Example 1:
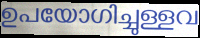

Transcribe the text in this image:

ഉപയോഗിച്ചുള്ളവ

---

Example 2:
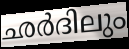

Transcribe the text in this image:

ഛർദിലും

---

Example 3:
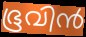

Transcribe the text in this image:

ഭൂവിൻ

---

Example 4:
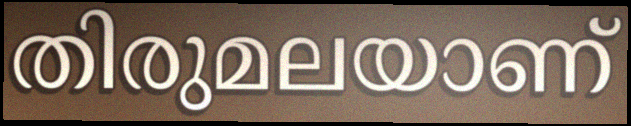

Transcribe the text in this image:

തിരുമലയാണ്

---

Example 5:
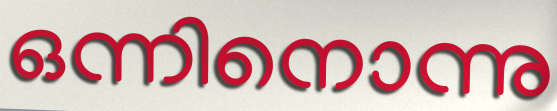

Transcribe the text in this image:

ഒന്നിനൊന്നു